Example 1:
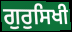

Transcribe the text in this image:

ਗੁਰੁਸਿਖੀ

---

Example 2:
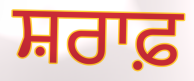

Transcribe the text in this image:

ਸ਼ਰਾਫ਼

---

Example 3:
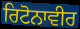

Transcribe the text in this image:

ਰਿਟੋਨਾਵੀਰ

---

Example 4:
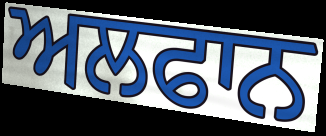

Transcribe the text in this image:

ਅਲਫਾਨ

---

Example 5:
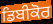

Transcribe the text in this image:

ਡਿਬੀਕੋਰ